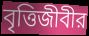
বৃত্তিজীবীর